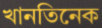
খানতিনেক